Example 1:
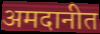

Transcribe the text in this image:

अमदानीत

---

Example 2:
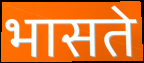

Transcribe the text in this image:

भासते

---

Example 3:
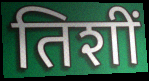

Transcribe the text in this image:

तिशीं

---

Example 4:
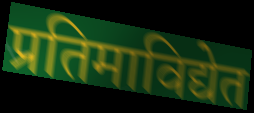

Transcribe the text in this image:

प्रतिमाविद्येत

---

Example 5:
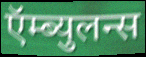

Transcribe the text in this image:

ऍम्ब्युलन्स